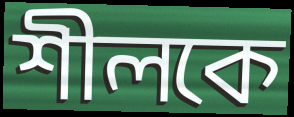
শীলকে